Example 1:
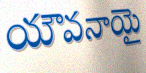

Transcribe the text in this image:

యౌవనాయై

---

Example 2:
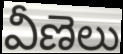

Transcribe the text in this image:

వీణెలు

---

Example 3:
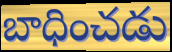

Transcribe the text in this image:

బాధించడు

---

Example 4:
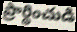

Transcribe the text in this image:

ప్రార్థించుడి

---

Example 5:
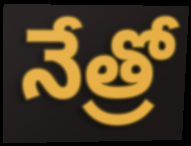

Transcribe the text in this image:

నేత్రో